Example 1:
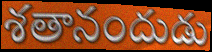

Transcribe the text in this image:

శతానందుడు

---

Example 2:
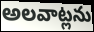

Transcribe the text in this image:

అలవాట్లను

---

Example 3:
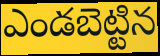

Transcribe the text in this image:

ఎండబెట్టిన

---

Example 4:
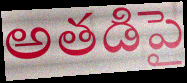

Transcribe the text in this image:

అతడిపై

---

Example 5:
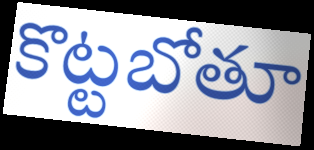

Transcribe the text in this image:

కొట్టబోతూ